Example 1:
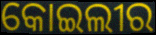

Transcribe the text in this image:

କୋଇଲୀର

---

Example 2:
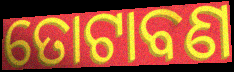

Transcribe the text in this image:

ତୋଟାବଣ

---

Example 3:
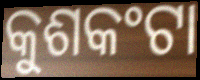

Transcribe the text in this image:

କୁଶକଂଟା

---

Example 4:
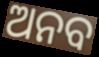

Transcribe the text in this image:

ଅନବ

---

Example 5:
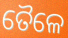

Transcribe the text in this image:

ତୈଳେ